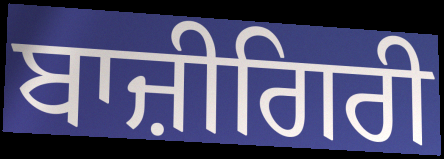
ਬਾਜ਼ੀਗਿਰੀ